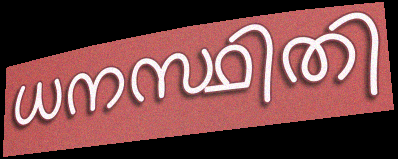
ധനസ്ഥിതി